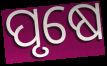
ପୃଷେ